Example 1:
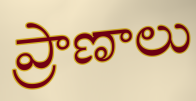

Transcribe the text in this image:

ప్రాణాలు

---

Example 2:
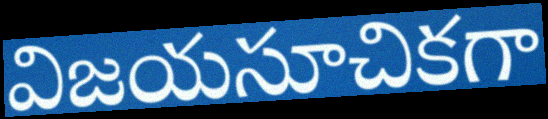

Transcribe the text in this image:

విజయసూచికగా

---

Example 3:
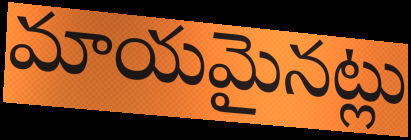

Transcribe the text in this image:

మాయమైనట్లు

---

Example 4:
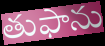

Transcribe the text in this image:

తుఫాను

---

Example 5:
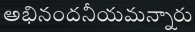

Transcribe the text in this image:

అభినందనీయమన్నారు